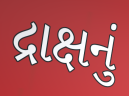
દ્રાક્ષનું